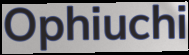
Ophiuchi